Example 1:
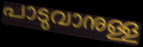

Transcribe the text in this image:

പാടുവാനുള്ള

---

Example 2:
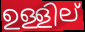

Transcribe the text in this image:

ഉള്ളില്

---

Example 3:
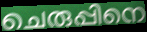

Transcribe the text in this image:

ചെരുപ്പിനെ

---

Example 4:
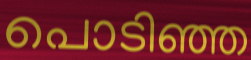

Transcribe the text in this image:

പൊടിഞ്ഞ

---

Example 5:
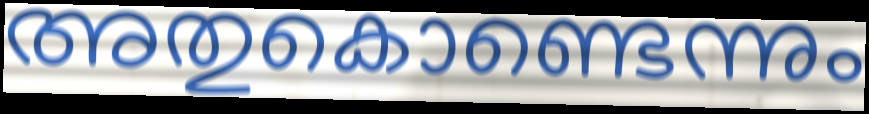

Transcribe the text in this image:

അതുകൊണ്ടെന്നും